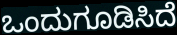
ಒಂದುಗೂಡಿಸಿದೆ